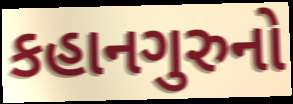
કહાનગુરુનો